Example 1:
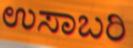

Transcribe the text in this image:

ಉಸಾಬರಿ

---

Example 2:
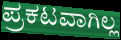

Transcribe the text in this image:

ಪ್ರಕಟವಾಗಿಲ್ಲ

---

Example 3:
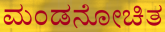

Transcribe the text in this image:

ಮಂಡನೋಚಿತ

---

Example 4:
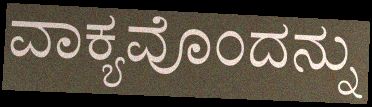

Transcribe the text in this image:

ವಾಕ್ಯವೊಂದನ್ನು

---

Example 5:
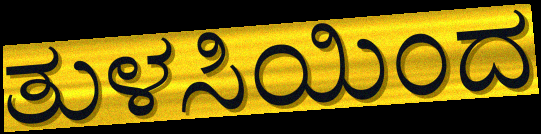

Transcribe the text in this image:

ತುಳಸಿಯಿಂದ